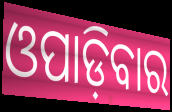
ଓପାଡ଼ିବାର